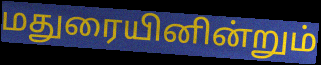
மதுரையினின்றும்